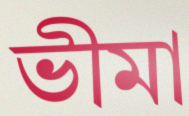
ভীমা